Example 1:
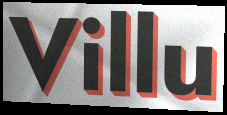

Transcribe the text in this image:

Villu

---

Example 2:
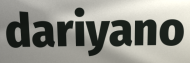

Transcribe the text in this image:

dariyano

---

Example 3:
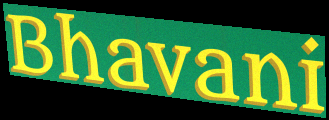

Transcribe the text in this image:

Bhavani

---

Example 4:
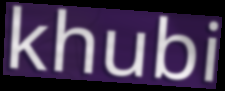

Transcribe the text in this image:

khubi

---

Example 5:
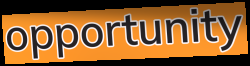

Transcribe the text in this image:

opportunity